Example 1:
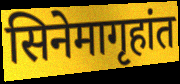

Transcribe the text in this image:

सिनेमागृहांत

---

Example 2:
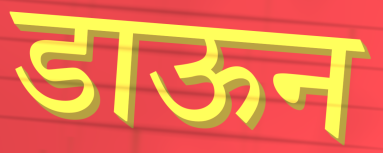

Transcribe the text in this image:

डाऊन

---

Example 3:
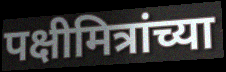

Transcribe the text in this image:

पक्षीमित्रांच्या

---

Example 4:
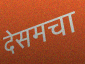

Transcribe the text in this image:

देसमचा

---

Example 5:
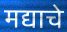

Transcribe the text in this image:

मद्याचे